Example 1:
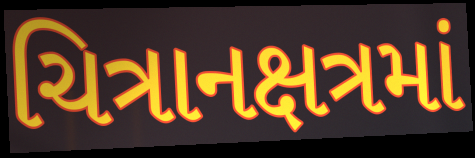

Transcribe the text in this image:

ચિત્રાનક્ષત્રમાં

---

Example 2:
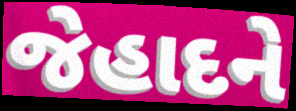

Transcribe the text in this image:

જેહાદને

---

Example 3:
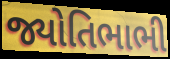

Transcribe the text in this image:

જ્યોતિભાભી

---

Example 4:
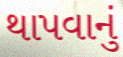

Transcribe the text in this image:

થાપવાનું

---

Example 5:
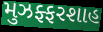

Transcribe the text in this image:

મુઝફ્ફરશાહ